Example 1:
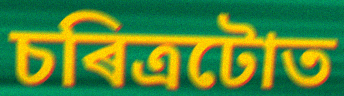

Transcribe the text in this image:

চৰিত্ৰটোত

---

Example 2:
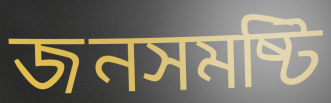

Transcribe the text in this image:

জনসমষ্টি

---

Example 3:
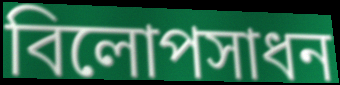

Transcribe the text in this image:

বিলোপসাধন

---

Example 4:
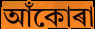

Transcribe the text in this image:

আঁকোৰা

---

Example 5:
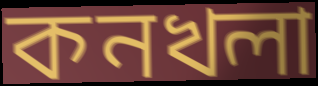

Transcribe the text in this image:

কনখলা